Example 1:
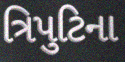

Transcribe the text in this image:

ત્રિપુટિના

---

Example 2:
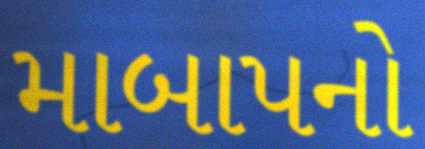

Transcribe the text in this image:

માબાપનો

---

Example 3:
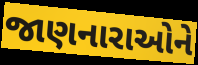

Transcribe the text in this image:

જાણનારાઓને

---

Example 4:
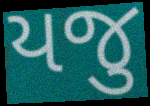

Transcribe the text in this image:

યજુ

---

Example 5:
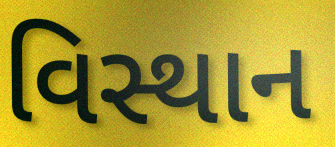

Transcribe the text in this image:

વિસ્થાન